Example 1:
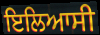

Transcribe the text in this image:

ਇਲਿਆਸੀ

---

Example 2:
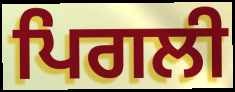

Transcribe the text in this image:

ਪਿਗਲੀ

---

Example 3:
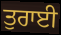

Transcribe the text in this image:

ਤੁਰਾਈ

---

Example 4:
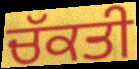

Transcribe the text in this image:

ਚੱਕਤੀ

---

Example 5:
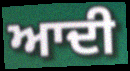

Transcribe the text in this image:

ਆਦੀ